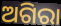
ଅଗିରା